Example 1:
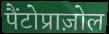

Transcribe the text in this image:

पैंटोप्राज़ोल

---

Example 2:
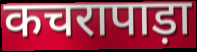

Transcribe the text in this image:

कचरापाड़ा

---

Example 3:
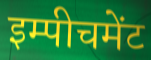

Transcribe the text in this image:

इम्पीचमेंट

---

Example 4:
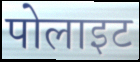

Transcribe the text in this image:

पोलाइट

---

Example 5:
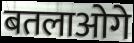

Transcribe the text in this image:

बतलाओगे